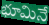
భూమినే